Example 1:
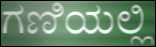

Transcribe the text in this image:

ಗಣಿಯಲ್ಲಿ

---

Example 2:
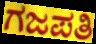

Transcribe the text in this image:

ಗಜಪತಿ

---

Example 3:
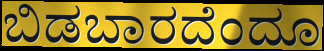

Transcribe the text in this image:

ಬಿಡಬಾರದೆಂದೂ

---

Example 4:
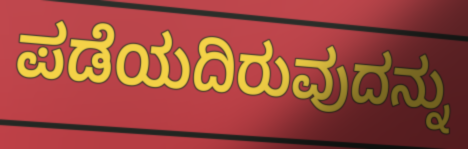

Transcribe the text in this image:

ಪಡೆಯದಿರುವುದನ್ನು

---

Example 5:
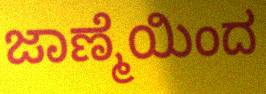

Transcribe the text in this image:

ಜಾಣ್ಮೆಯಿಂದ